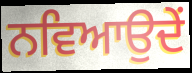
ਨਵਿਆਉਦੇਂ